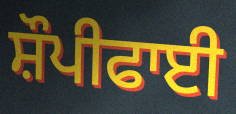
ਸ਼ੌਪੀਫਾਈ